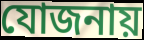
যোজনায়